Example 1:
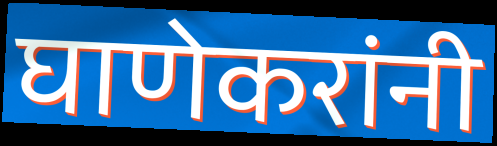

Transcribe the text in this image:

घाणेकरांनी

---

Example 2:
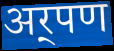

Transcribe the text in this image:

अर्पण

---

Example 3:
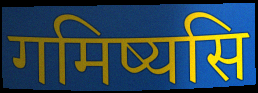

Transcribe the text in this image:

गमिष्यसि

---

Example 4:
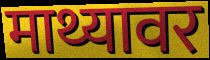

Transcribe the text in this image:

माथ्यावर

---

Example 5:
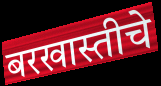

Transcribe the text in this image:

बरखास्तीचे